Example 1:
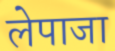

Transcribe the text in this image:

लेपाजा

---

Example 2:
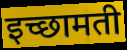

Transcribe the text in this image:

इच्छामती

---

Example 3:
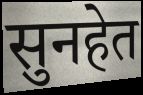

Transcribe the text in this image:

सुनहेत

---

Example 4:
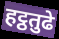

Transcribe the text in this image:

हट्ठतुढे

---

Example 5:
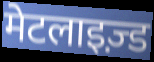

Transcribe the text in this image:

मेटलाइज़्ड